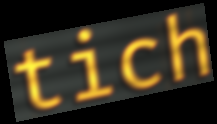
tich